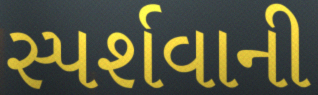
સ્પર્શવાની